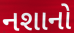
નશાનો